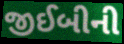
જીઈબીની